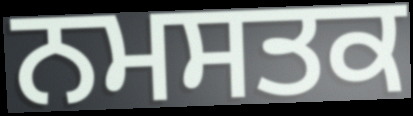
ਨਮਸਤਕ